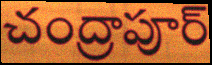
చంద్రాపూర్